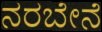
ನರಬೇನೆ